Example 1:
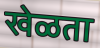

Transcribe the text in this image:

खेळता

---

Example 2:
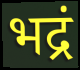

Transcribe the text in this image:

भद्रं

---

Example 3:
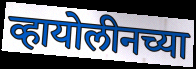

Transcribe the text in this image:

व्हायोलीनच्या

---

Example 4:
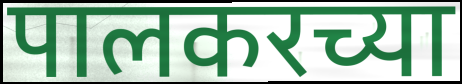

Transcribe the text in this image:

पालकरच्या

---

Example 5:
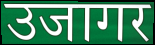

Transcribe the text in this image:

उजागर